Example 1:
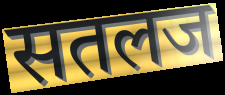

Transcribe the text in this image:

सतलज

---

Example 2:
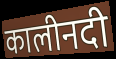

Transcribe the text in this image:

कालीनदी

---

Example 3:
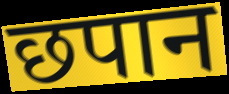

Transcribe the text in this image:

छपान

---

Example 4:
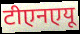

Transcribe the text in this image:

टीएनएयू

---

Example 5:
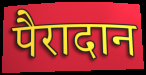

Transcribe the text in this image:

पैरादान